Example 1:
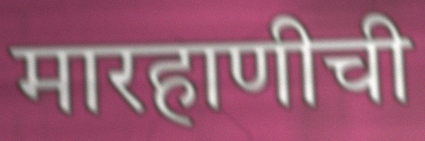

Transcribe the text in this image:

मारहाणीची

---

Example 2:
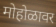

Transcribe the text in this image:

मोहोळावर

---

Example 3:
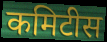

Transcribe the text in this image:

कमिटीस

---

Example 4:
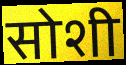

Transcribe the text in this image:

सोशी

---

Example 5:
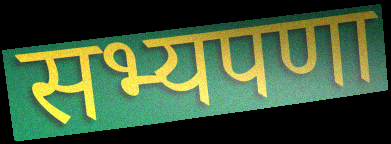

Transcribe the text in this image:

सभ्यपणा